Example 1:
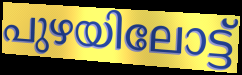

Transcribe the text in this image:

പുഴയിലോട്ട്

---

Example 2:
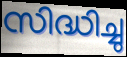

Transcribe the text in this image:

സിദ്ധിച്ചു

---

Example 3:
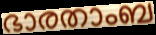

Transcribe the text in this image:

ഭാരതാംബ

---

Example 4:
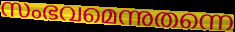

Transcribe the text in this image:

സംഭവമെന്നുതന്നെ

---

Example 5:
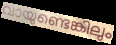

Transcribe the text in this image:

വായുണ്ടെങ്കിലും